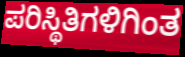
ಪರಿಸ್ಥಿತಿಗಳಿಗಿಂತ